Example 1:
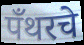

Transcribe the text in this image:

पँथरचे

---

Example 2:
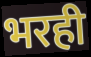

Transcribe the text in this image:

भरही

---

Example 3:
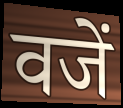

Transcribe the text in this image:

वजें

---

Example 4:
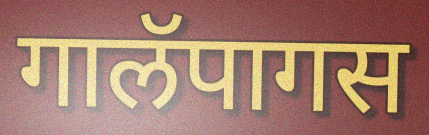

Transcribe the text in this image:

गालॅपागस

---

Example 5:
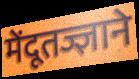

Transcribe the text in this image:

मेंदूतज्ज्ञाने